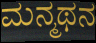
ಮನ್ಮಥನ